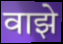
वाझे